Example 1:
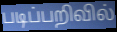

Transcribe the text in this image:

படிப்பறிவில்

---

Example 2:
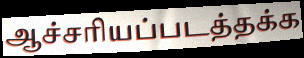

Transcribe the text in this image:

ஆச்சரியப்படத்தக்க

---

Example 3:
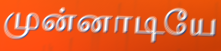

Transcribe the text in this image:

முன்னாடியே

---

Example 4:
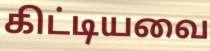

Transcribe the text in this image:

கிட்டியவை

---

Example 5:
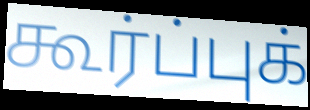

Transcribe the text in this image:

கூர்ப்புக்